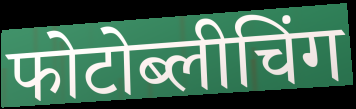
फोटोब्लीचिंग